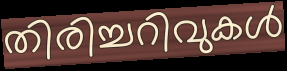
തിരിച്ചറിവുകൾ